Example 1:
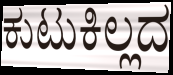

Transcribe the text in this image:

ಕುಟುಕಿಲ್ಲದ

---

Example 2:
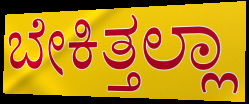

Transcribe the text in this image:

ಬೇಕಿತ್ತಲ್ಲಾ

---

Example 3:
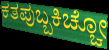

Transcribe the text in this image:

ಕತಪುಬ್ಬಕಿಚ್ಚೋ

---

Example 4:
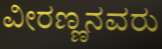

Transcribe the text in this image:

ವೀರಣ್ಣನವರು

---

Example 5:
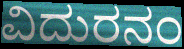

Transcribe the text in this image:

ವಿದುರನಂ